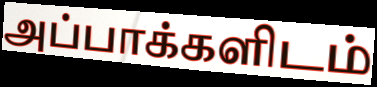
அப்பாக்களிடம்